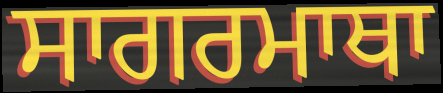
ਸਾਗਰਮਾਥਾ